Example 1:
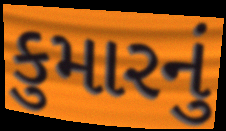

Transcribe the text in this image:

કુમારનું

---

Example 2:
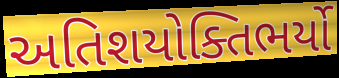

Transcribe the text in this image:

અતિશયોક્તિભર્યો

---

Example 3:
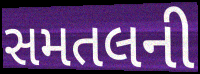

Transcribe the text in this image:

સમતલની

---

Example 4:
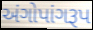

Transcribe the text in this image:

અંગોપાંગરૂપ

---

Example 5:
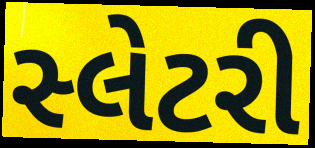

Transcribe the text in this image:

સ્લેટરી